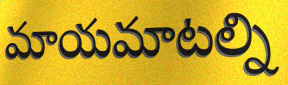
మాయమాటల్ని